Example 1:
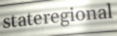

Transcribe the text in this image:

stateregional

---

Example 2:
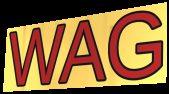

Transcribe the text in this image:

WAG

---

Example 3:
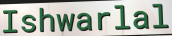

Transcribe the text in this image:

Ishwarlal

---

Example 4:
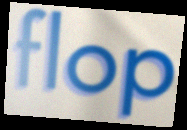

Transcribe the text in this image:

flop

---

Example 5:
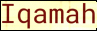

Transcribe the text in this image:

Iqamah